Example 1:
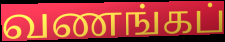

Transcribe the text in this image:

வணங்கப்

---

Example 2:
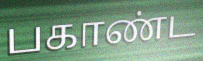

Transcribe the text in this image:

பகாண்ட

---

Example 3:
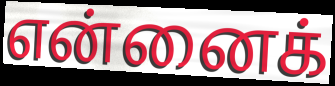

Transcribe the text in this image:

என்னைக்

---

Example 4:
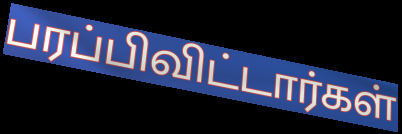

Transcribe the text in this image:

பரப்பிவிட்டார்கள்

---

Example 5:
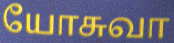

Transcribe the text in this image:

யோசுவா